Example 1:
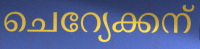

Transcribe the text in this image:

ചെറ്യേക്കന്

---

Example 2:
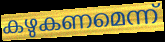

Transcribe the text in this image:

കഴുകണമെന്ന്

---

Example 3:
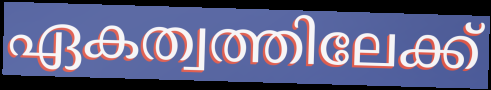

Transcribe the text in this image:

ഏകത്വത്തിലേക്ക്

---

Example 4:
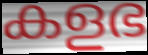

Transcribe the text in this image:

കളഭ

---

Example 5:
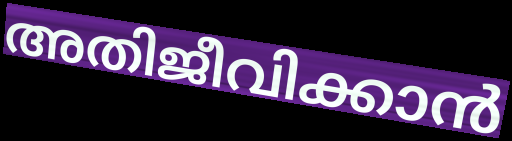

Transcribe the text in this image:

അതിജീവിക്കാൻ